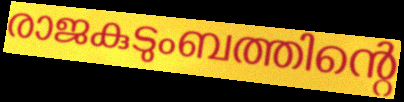
രാജകുടുംബത്തിന്റെ